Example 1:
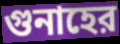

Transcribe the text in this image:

গুনাহের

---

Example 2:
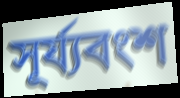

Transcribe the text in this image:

সূর্য্যবংশ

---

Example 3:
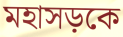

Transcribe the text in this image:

মহাসড়কে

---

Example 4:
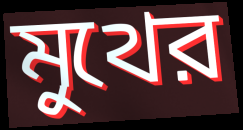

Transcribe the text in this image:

মুথের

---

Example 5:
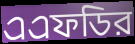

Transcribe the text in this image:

এএফডির